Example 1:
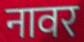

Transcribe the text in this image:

नावर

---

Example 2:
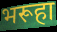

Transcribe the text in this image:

भरूहा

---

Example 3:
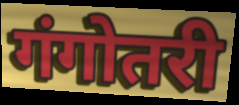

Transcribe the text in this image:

गंगोतरी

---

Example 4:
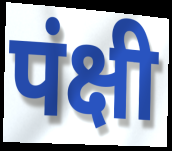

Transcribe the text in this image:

पंक्षी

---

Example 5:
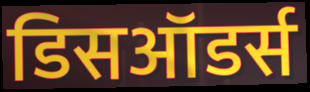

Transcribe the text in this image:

डिसऑडर्स